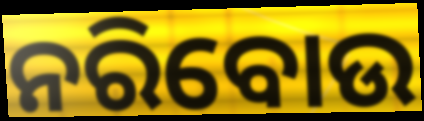
ନରିବୋଉ